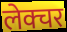
लेक्चर